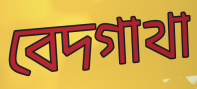
বেদগাথা